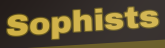
Sophists